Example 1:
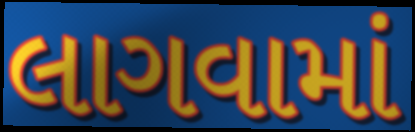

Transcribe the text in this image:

લાગવામાં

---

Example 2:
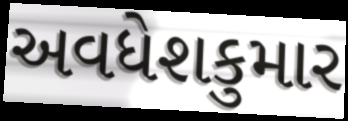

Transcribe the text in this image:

અવધેશકુમાર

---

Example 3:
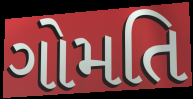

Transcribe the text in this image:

ગોમતિ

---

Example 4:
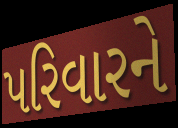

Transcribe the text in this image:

પરિવારને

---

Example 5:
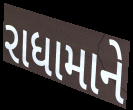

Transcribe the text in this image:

રાધામાને